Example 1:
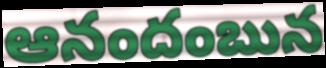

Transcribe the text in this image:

ఆనందంబున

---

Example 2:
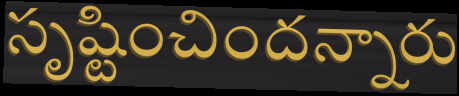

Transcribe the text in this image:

సృష్టించిందన్నారు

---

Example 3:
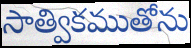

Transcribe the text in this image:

సాత్వికముతోను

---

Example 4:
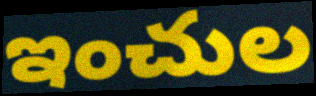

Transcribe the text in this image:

ఇంచుల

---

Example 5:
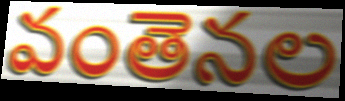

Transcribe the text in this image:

వంతెనల